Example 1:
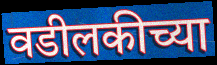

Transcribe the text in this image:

वडीलकीच्या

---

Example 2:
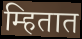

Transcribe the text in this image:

म्हितात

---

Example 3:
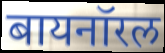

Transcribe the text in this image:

बायनॉरल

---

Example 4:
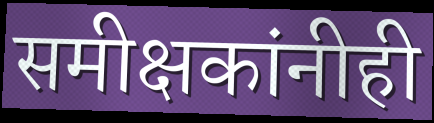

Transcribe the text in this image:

समीक्षकांनीही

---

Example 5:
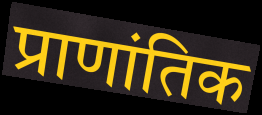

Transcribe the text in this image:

प्राणांतिक